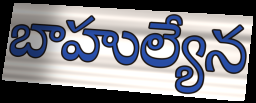
బాహుల్యేన